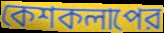
কেশকলাপের